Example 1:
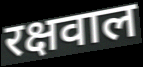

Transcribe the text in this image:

रक्षवाल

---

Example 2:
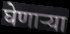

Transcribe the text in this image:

घेणाऱ्या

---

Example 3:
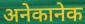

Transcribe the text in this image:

अनेकानेक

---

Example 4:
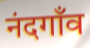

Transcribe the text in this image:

नंदगाँव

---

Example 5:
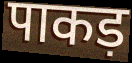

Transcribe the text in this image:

पाकड़